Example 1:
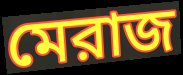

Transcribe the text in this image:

মেরাজ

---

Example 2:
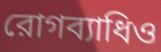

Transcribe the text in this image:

রোগব্যাধিও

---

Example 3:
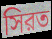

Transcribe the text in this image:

সিরত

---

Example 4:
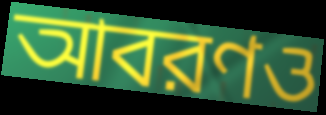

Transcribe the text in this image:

আবরণও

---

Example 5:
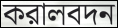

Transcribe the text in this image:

করালবদন